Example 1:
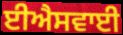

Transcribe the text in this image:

ਈਐਸਵਾਈ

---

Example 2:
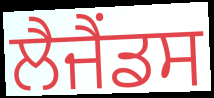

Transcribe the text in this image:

ਲੈਜੈਂਡਸ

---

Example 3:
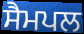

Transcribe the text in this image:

ਸੈਮਪਲ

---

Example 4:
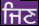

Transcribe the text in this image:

ਜਿਣ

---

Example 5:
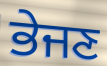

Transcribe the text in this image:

ਭੇਜਣ